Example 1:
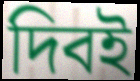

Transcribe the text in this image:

দিবই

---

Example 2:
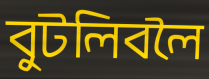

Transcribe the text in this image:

বুটলিবলৈ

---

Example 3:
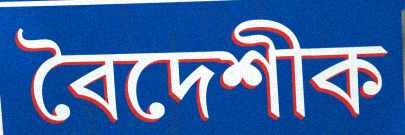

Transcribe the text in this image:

বৈদেশীক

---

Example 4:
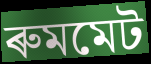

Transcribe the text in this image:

ৰুমমেট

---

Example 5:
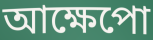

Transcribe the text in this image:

আক্ষেপো